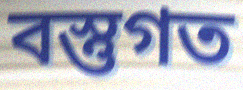
বস্তুগত